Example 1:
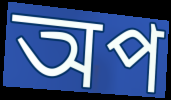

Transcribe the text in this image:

অপ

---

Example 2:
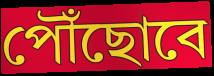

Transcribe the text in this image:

পৌঁছোবে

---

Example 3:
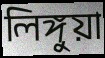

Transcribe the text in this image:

লিঙ্গুয়া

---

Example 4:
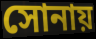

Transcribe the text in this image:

সোনায়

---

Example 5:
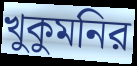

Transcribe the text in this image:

খুকুমনির